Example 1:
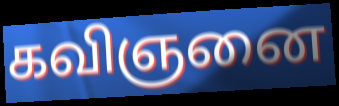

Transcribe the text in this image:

கவிஞனை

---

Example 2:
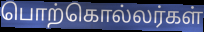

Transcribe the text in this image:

பொற்கொல்லர்கள்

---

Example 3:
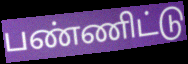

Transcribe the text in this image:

பண்ணிட்டு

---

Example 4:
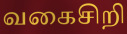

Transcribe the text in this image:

வகைசிறி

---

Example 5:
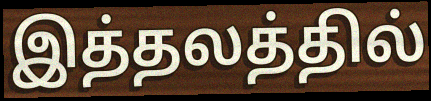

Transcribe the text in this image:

இத்தலத்தில்